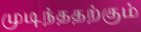
முடிந்ததற்கும்